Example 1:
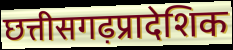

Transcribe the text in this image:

छत्तीसगढ़प्रादेशिक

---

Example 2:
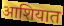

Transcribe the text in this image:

आशियात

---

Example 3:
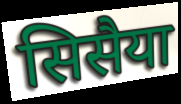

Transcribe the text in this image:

सिसैया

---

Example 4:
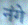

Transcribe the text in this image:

नंगे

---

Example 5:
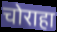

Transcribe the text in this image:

चोराहा